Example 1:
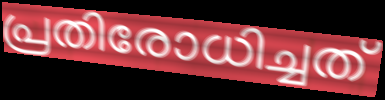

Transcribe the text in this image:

പ്രതിരോധിച്ചത്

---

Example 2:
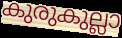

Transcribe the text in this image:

കുരുകുല്ലാ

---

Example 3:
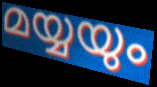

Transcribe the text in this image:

മയ്യയും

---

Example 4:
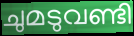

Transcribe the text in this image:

ചുമടുവണ്ടി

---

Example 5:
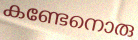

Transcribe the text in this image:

കണ്ടേനൊരു